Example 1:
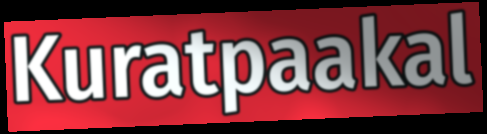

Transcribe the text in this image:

Kuratpaakal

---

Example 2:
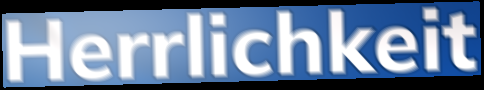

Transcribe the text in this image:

Herrlichkeit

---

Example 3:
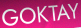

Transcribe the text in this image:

GOKTAY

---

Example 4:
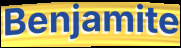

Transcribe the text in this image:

Benjamite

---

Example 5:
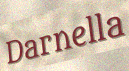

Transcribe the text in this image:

Darnella